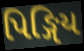
પિઙ્ગિય